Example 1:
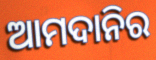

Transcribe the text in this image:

ଆମଦାନିର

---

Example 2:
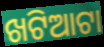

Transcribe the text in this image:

ଖଟିଆଟା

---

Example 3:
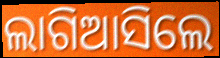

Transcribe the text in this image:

ଲାଗିଆସିଲେ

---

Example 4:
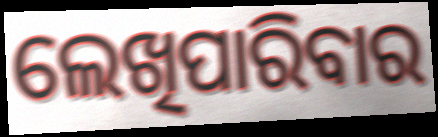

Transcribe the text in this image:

ଲେଖିପାରିବାର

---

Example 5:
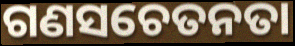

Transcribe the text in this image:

ଗଣସଚେତନତା